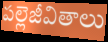
పల్లెజీవితాలు